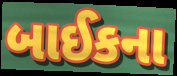
બાઈકના